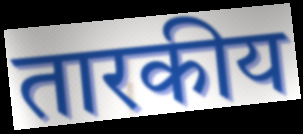
तारकीय